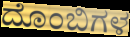
ದೊಂಬಿಗಳ